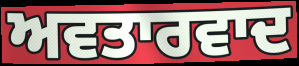
ਅਵਤਾਰਵਾਦ